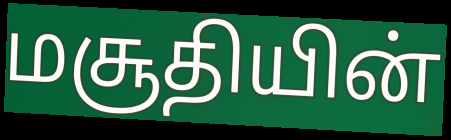
மசூதியின்